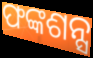
ଫଙ୍କଶନ୍ସ